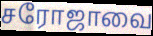
சரோஜாவை